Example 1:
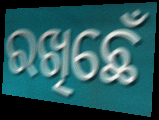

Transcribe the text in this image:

ରଖିଛେଁ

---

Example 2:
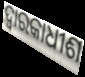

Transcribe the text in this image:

ଦ୍ୱାରକାଧୀଶ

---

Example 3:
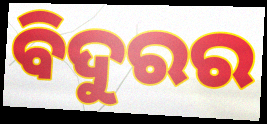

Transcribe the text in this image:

ବିଦୁରର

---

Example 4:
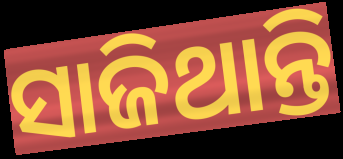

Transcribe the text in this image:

ସାଜିଥାନ୍ତି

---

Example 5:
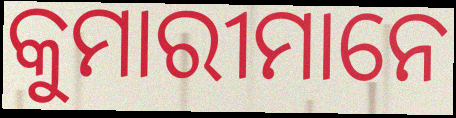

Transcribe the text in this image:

କୁମାରୀମାନେ